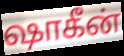
ஷாகீன்